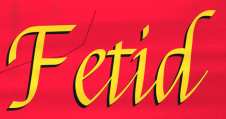
Fetid